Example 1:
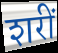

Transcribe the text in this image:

शरीं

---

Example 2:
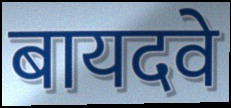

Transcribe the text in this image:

बायदवे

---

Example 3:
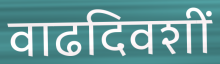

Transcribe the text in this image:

वाढदिवशीं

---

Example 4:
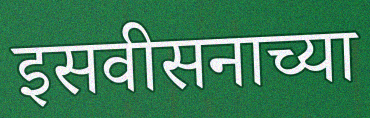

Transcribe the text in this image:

इसवीसनाच्या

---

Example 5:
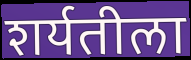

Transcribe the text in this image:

शर्यतीला